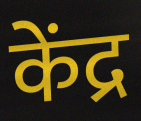
केंद्र